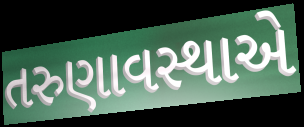
તરુણાવસ્થાએ